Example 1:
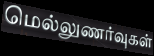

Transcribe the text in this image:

மெல்லுணர்வுகள்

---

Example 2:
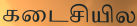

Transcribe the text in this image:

கடைசியில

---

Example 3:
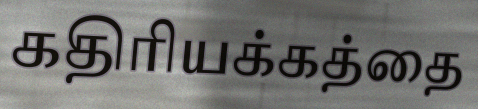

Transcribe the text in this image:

கதிரியக்கத்தை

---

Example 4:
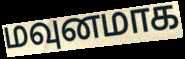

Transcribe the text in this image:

மவுனமாக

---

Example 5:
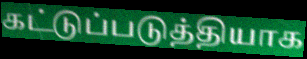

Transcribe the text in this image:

கட்டுப்படுத்தியாக